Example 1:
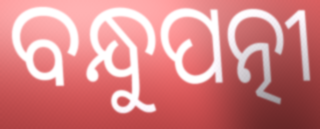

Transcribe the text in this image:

ବନ୍ଧୁପତ୍ନୀ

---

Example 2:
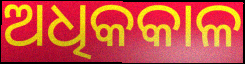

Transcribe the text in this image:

ଅଧିକକାଳ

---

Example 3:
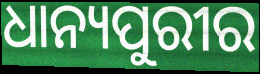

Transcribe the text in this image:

ଧାନ୍ୟପୁରୀର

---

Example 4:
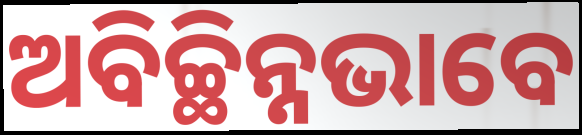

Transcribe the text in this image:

ଅବିଚ୍ଛିନ୍ନଭାବେ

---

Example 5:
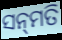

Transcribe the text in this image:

ସନ୍‌ମତି